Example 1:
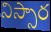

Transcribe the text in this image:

నిస్సార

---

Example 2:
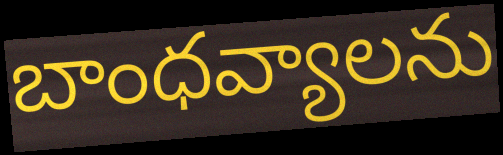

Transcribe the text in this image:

బాంధవ్యాలను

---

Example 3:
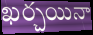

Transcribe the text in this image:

ఖర్చయినా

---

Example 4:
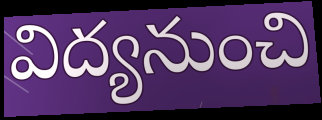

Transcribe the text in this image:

విద్యనుంచి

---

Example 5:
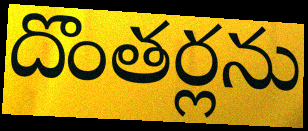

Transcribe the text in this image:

దొంతర్లను